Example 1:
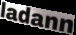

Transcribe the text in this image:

ladann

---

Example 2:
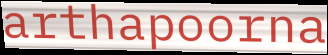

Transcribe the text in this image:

arthapoorna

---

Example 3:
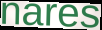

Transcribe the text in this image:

nares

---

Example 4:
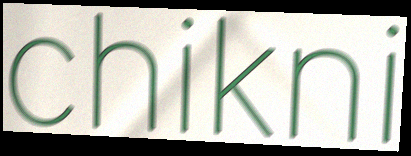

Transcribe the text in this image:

chikni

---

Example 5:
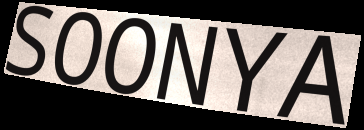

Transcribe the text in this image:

SOONYA